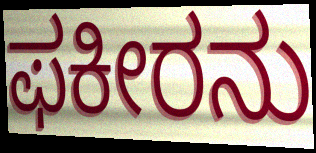
ಫಕೀರನು